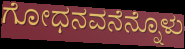
ಗೋಧನವನೆನ್ನೊಳು